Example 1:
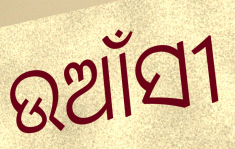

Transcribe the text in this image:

ଉଆଁସୀ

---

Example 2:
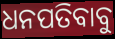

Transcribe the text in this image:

ଧନପତିବାବୁ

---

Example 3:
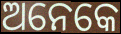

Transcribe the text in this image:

ଅନେକେ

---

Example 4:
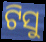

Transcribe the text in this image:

ଟିସୁ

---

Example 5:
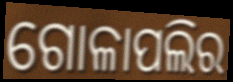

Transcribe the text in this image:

ଗୋଳାପଲିର